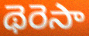
థెరెసా